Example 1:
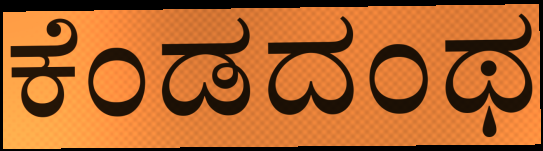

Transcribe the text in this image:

ಕೆಂಡದಂಥ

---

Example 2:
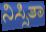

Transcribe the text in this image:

ನಿಸ್ಸಿತಾ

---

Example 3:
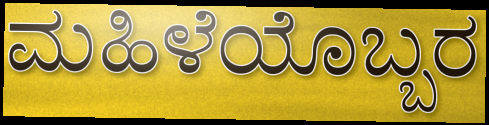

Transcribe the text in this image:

ಮಹಿಳೆಯೊಬ್ಬರ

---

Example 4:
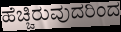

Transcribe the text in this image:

ಹೆಚ್ಚಿರುವುದರಿಂದ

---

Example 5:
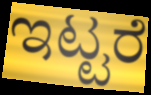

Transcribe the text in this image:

ಇಟ್ಟರೆ